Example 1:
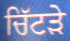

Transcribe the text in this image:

ਚਿੱਟੜੇ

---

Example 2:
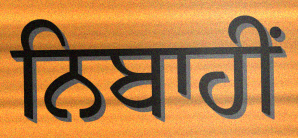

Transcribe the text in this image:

ਨਿਬਾਹੀਂ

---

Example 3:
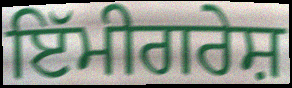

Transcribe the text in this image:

ਇੱਮੀਗਰੇਸ਼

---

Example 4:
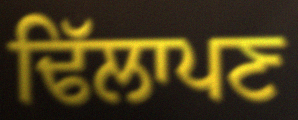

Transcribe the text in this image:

ਢਿੱਲਾਪਣ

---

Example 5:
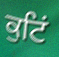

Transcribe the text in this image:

ਕੁਟਿਂ